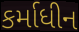
કર્માધીન